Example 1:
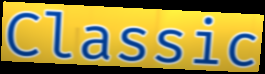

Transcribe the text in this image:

Classic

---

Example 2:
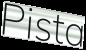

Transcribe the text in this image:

Pista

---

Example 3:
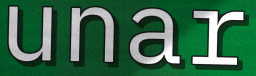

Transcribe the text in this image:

unar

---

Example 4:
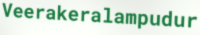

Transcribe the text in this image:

Veerakeralampudur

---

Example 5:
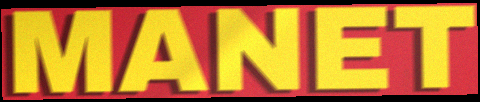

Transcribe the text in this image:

MANET